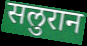
सलुरान